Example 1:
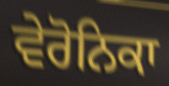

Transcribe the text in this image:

ਵੇਰੋਨਿਕਾ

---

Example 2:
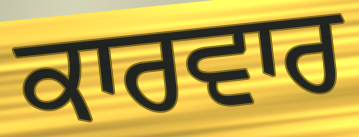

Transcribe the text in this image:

ਕਾਰਵਾਰ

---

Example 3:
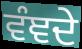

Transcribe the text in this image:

ਵੰਞਦੇ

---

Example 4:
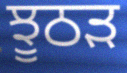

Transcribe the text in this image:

ਝੂਠੜ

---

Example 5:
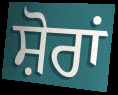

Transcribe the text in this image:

ਸ਼ੋਰਾਂ